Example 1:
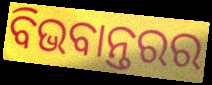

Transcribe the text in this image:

ବିଭବାନ୍ତରର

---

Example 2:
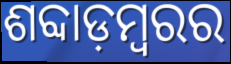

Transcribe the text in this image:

ଶବ୍ଦାଡ଼ମ୍ବରର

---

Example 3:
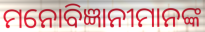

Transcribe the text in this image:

ମନୋବିଜ୍ଞାନୀମାନଙ୍କ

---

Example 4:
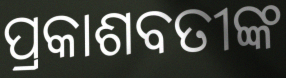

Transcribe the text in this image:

ପ୍ରକାଶବତୀଙ୍କ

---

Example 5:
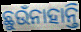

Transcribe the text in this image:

ଛୁଉଁନାହାନ୍ତି